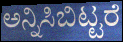
ಅನ್ನಿಸಿಬಿಟ್ಟರೆ